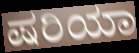
ಷರಿಯಾ